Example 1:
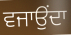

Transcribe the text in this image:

ਵਜਾਉਂਦਾ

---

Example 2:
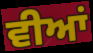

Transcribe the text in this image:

ਵੀਆਂ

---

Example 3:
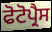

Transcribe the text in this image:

ਫੋਟੋਪ੍ਰੈਸ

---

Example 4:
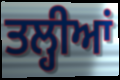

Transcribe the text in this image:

ਤਲ੍ਹੀਆਂ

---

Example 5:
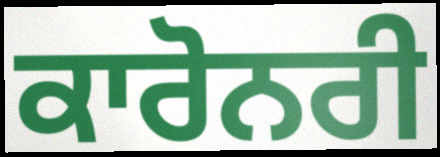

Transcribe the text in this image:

ਕਾਰੋਨਰੀ